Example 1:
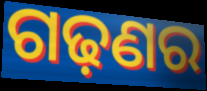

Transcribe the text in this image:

ଗଢ଼ଣର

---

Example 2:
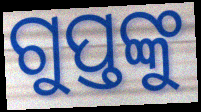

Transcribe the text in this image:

ଗୁପ୍ତଙ୍କୁ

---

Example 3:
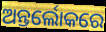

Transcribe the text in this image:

ଅନ୍ତର୍ଲୋକରେ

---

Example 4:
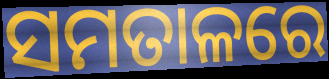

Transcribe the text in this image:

ସମତାଳରେ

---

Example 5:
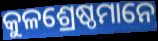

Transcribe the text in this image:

କୁଳଶ୍ରେଷ୍ଠମାନେ